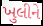
ખુલીને